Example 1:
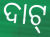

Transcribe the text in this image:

ଦାଟ୍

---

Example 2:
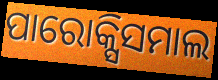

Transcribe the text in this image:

ପାରୋକ୍ସିସମାଲ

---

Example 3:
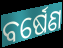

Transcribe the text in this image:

ବର୍ଷେଣ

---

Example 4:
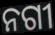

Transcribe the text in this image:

ନଗୀ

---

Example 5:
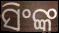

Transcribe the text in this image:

ସିଂଙ୍କ